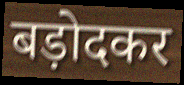
बड़ोदकर